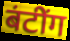
बंटींग